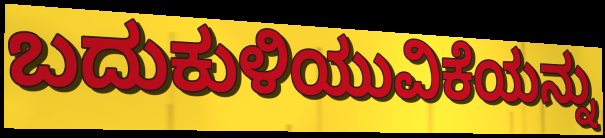
ಬದುಕುಳಿಯುವಿಕೆಯನ್ನು